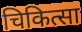
चिकित्सा